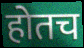
होतच